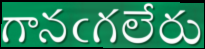
గానఁగలేరు